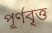
পূর্ণবৃত্ত